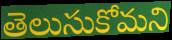
తెలుసుకోమని